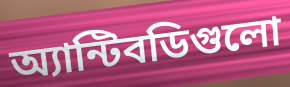
অ্যান্টিবডিগুলো